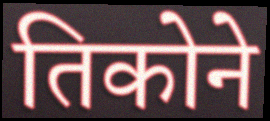
तिकोने